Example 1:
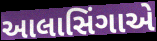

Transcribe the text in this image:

આલાસિંગાએ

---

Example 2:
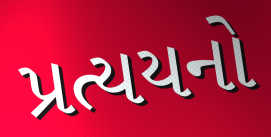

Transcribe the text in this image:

પ્રત્યયનો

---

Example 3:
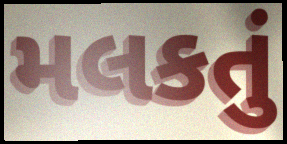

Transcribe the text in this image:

મલકતું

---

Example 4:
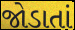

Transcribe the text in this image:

જોડાતાં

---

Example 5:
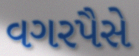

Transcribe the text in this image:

વગરપૈસે